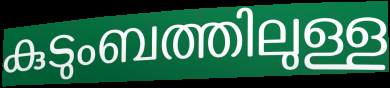
കുടുംബത്തിലുള്ള